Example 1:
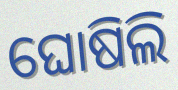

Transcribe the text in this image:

ଘୋଷିଲି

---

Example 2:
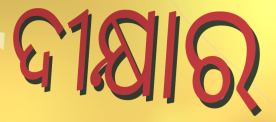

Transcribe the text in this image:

ଦୀକ୍ଷାର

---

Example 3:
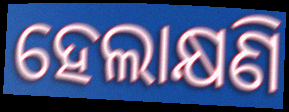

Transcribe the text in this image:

ହେଲାକ୍ଷଣି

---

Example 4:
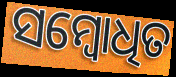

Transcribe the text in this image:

ସମ୍ବୋଧିତ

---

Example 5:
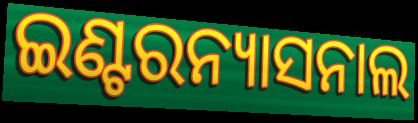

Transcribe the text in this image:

ଇଣ୍ଟରନ୍ୟାସନାଲ